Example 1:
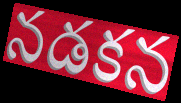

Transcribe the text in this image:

నడకన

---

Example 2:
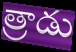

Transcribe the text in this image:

త్రాడు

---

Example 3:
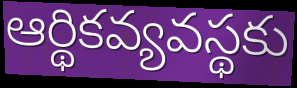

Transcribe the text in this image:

ఆర్థికవ్యవస్థకు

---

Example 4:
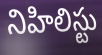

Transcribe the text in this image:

నిహిలిస్టు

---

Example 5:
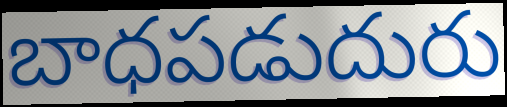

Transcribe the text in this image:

బాధపడుదురు